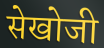
सेखोजी